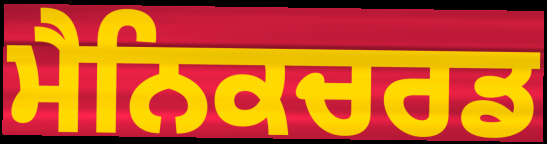
ਮੈਨਿਕਚਰਡ